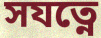
সযত্নে